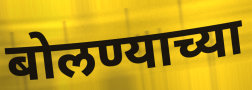
बोलण्याच्या